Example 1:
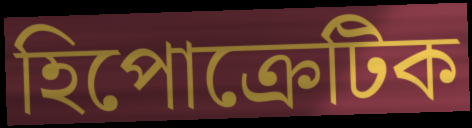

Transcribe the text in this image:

হিপোক্রেটিক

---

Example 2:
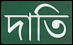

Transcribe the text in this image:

দাতি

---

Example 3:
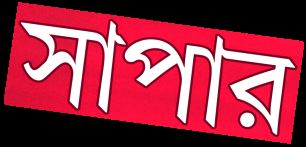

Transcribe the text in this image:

সাপার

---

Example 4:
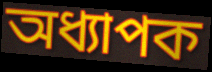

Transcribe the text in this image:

অধ্যাপক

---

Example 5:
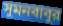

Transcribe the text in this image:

সুমনবাবুর